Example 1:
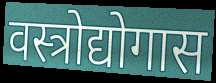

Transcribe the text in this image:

वस्त्रोद्योगास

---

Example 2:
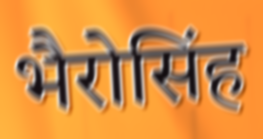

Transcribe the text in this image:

भैरोसिंह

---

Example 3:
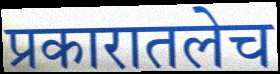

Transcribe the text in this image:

प्रकारातलेच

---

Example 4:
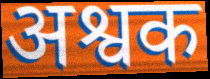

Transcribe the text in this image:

अश्वक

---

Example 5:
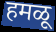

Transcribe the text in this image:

हमळू